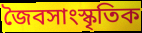
জৈবসাংস্কৃতিক